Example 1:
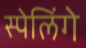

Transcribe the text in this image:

स्पेलिंगे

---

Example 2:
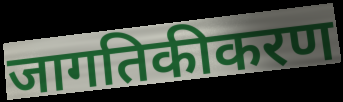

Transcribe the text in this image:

जागतिकीकरण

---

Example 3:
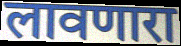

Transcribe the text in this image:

लावणारा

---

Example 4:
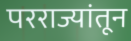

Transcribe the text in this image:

परराज्यांतून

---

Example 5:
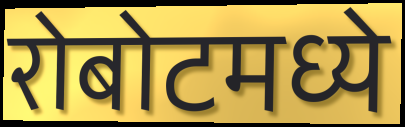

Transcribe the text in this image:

रोबोटमध्ये